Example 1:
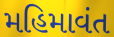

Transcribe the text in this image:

મહિમાવંત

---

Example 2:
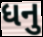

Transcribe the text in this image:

ધનુ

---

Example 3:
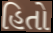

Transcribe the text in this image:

હિતો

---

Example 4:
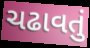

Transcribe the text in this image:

ચઢાવતું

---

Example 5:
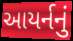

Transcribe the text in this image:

આયર્નનું